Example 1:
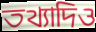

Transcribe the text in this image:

তথ্যাদিও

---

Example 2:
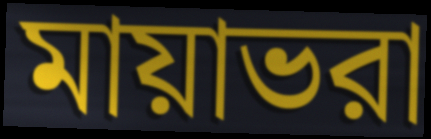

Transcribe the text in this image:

মায়াভরা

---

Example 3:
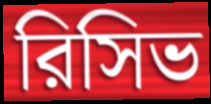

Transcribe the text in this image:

রিসিভ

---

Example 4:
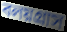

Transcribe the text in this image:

বলয়গ্রাস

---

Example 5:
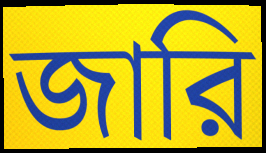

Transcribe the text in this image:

জারি